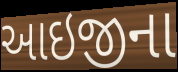
આઇજીના